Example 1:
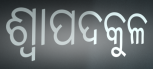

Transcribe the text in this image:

ଶ୍ୱାପଦକୁଳ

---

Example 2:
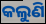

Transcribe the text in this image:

କଲୁଣି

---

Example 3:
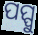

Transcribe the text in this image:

ପପ୍ପୁ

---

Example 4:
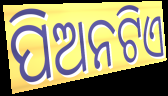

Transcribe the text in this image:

ପିଅନଟିଏ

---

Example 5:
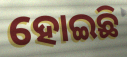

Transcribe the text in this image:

ହୋଇଛି